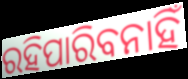
ରହିପାରିବନାହିଁ